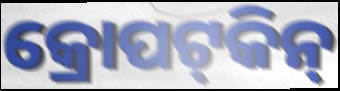
କ୍ରୋପଟ୍‍କିନ୍